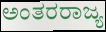
ಅಂತರರಾಜ್ಯ